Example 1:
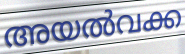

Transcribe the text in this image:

അയൽവക്ക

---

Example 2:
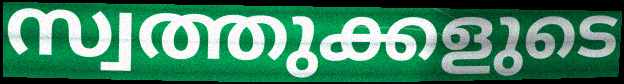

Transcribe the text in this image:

സ്വത്തുക്കളുടെ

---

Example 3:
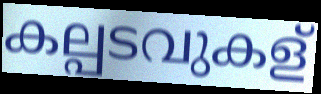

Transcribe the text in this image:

കല്പടവുകള്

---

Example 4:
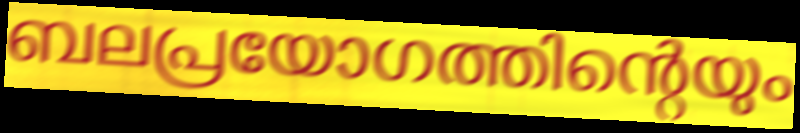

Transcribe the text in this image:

ബലപ്രയോഗത്തിന്റെയും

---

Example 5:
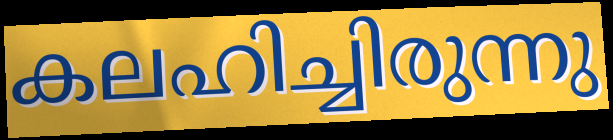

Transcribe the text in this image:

കലഹിച്ചിരുന്നു